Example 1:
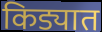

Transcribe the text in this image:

किड्यात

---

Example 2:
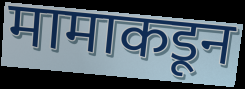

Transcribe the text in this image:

मामाकडून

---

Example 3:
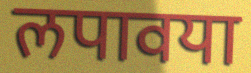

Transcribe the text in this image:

लपावया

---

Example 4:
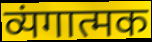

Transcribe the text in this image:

व्यंगात्मक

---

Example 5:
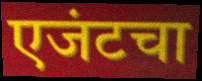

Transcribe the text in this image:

एजंटचा